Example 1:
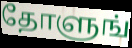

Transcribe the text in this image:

தோளுங்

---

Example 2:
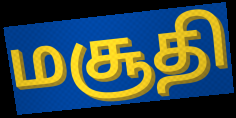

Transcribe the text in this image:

மசூதி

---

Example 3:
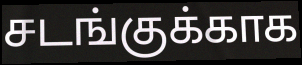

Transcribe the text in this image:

சடங்குக்காக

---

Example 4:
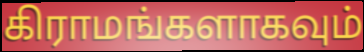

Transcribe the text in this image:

கிராமங்களாகவும்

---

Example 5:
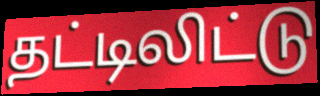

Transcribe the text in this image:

தட்டிலிட்டு